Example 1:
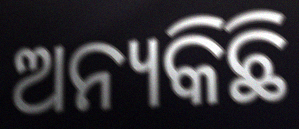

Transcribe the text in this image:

ଅନ୍ୟକିଛି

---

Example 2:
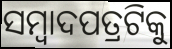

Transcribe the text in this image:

ସମ୍ବାଦପତ୍ରଟିକୁ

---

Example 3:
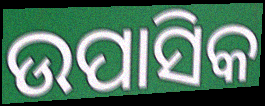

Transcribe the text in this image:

ଉପାସିକ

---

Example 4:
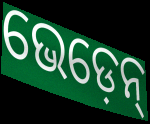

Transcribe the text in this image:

ଭେଡ଼େନ୍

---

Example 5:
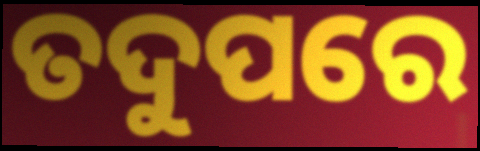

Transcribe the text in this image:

ତଦୁପରେ